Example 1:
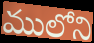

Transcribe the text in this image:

ములోని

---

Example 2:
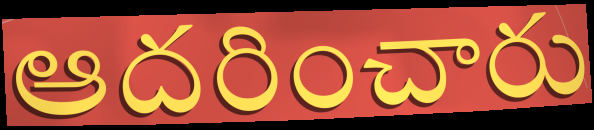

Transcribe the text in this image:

ఆదరించారు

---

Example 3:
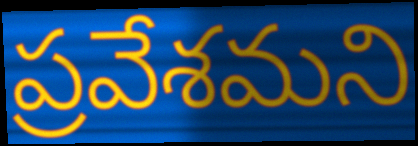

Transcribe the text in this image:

ప్రవేశమని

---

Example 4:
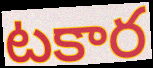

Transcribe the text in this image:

టకార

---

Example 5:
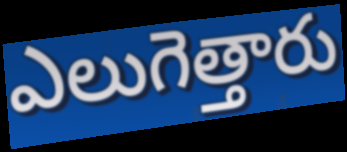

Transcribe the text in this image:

ఎలుగెత్తారు